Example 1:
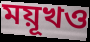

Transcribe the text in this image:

ময়ূখও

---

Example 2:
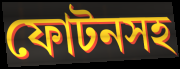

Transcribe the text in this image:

ফোটনসহ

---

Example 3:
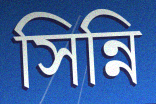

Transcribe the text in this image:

সিন্নি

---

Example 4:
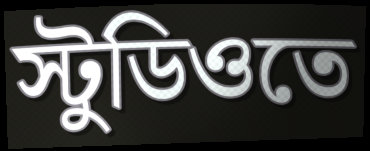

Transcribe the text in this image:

স্টুডিওতে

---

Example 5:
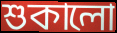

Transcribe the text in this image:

শুকালো